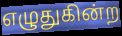
எழுதுகின்ற